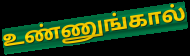
உண்ணுங்கால்